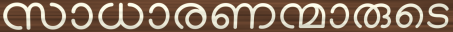
സാധാരണന്മാരുടെ